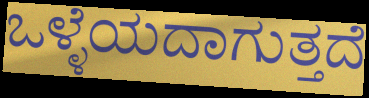
ಒಳ್ಳೆಯದಾಗುತ್ತದೆ